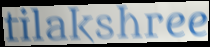
tilakshree